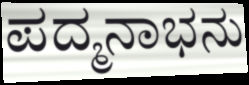
ಪದ್ಮನಾಭನು